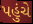
પહુંચે